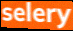
selery